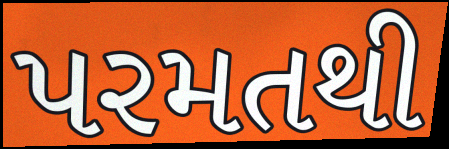
પરમતથી